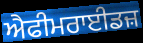
ਐਫੀਮਰਾਈਡਜ਼